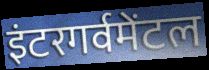
इंटरगर्वमेंटल